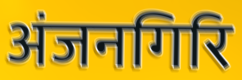
अंजनगिरि